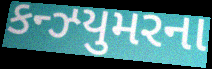
કન્ઝ્યુમરના